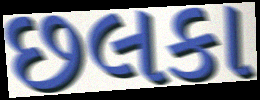
છલકા